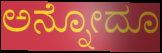
ಅನ್ನೋದೂ